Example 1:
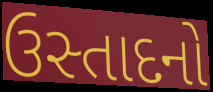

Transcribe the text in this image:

ઉસ્તાદનો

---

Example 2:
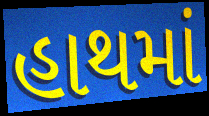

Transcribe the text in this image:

હાથમાં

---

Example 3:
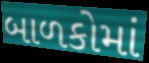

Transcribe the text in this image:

બાળકોમાં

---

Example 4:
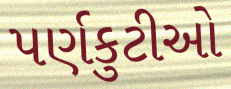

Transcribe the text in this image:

પર્ણકુટીઓ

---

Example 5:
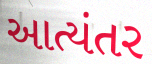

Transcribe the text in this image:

આત્યંતર